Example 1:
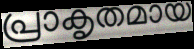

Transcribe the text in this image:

പ്രാകൃതമായ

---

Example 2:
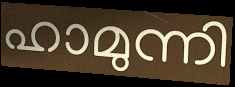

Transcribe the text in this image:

ഹാമുന്നി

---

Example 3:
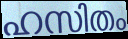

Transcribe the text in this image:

ഹസിതം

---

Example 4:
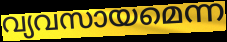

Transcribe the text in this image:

വ്യവസായമെന്ന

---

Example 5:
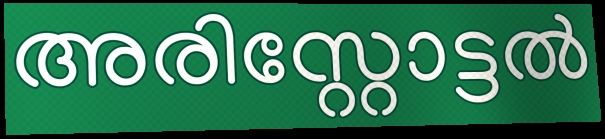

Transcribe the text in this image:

അരിസ്റ്റോട്ടൽ